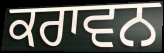
ਕਰਾਵਨ